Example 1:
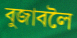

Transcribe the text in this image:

বুজাবলৈ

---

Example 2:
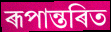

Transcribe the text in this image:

ৰূপান্তৰিত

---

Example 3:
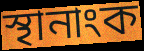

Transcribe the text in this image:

স্থানাংক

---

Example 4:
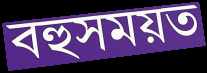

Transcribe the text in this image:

বহুসময়ত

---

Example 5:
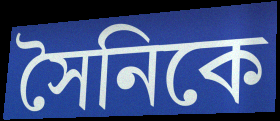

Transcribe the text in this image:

সৈনিকে